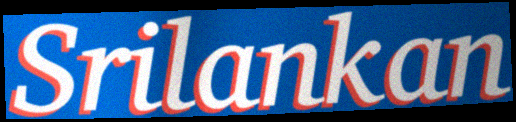
Srilankan